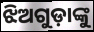
ଝିଅଗୁଡ଼ାଙ୍କୁ